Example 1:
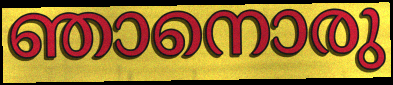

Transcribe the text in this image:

ഞാനൊരു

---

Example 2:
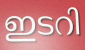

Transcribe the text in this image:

ഇടറി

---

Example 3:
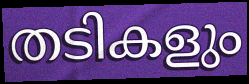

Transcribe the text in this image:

തടികളും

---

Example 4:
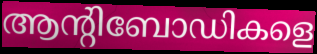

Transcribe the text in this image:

ആന്റിബോഡികളെ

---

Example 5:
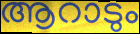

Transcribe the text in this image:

ആറാടും